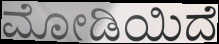
ಮೋಡಿಯಿದೆ